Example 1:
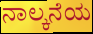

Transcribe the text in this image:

ನಾಲ್ಕನೆಯ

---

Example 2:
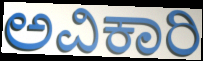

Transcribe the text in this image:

ಅವಿಕಾರಿ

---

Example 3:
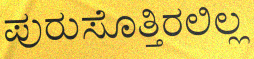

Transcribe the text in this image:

ಪುರುಸೊತ್ತಿರಲಿಲ್ಲ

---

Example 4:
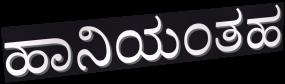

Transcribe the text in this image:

ಹಾನಿಯಂತಹ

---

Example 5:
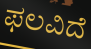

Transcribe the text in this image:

ಫಲವಿದೆ